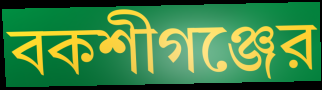
বকশীগঞ্জের